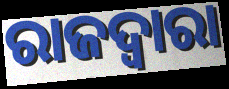
ରାଜଦ୍ୱାରା